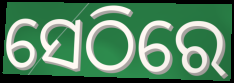
ସେଠିରେ